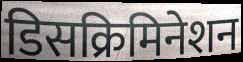
डिसक्रिमिनेशन